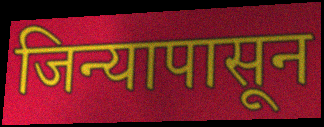
जिन्यापासून